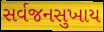
સર્વજનસુખાય